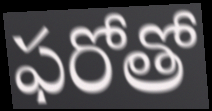
ఫరోతో